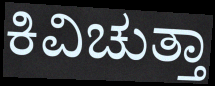
ಕಿವಿಚುತ್ತಾ